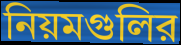
নিয়মগুলির